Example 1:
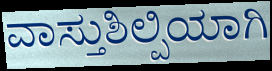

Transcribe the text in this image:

ವಾಸ್ತುಶಿಲ್ಪಿಯಾಗಿ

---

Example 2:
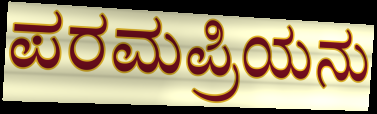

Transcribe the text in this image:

ಪರಮಪ್ರಿಯನು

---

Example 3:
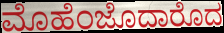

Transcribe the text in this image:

ಮೊಹೆಂಜೊದಾರೊದ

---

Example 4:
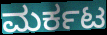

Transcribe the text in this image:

ಮರ್ಕಟ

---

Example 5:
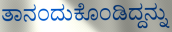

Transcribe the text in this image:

ತಾನಂದುಕೊಂಡಿದ್ದನ್ನು